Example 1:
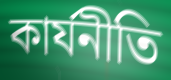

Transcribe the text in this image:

কার্যনীতি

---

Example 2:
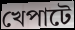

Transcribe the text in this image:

খেপাটে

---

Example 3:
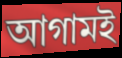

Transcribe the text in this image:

আগামই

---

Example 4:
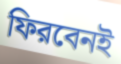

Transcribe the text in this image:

ফিরবেনই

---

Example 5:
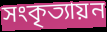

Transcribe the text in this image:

সংকৃত্যায়ন